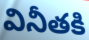
వినీతకి